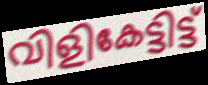
വിളികേട്ടിട്ട്